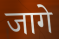
जागे